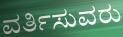
ವರ್ತಿಸುವರು